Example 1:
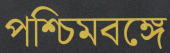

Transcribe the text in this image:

পশ্চিমবঙ্গে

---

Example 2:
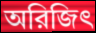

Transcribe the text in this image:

অরিজিৎ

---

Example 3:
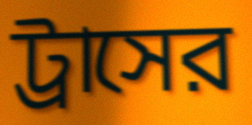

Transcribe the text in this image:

ট্রাসের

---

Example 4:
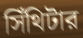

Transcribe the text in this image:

সিঁথিটার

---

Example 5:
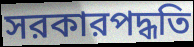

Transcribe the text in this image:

সরকারপদ্ধতি